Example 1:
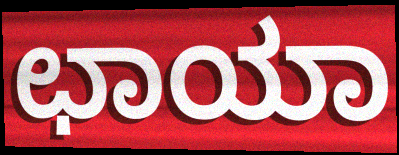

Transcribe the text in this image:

ಛಾಯಾ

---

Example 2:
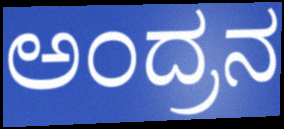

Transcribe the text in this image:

ಅಂದ್ರನ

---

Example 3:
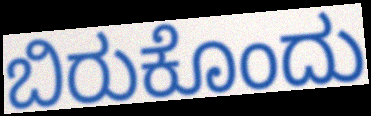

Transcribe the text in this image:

ಬಿರುಕೊಂದು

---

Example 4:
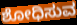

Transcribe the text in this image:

ಶೋಧಿಸುವ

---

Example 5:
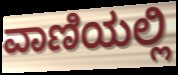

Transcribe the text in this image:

ವಾಣಿಯಲ್ಲಿ